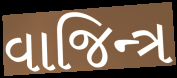
વાજિન્ત્ર